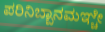
ಪರಿನಿಬ್ಬಾನಮಞ್ಚೇ